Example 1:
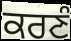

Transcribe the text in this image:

ਕਰਣੰ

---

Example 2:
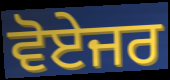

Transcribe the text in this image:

ਵੋਏਜਰ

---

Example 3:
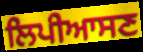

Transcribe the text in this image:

ਲਿਪੀਆਸਣ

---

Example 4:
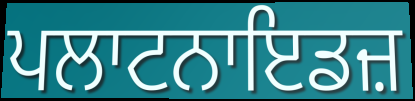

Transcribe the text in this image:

ਪਲਾਟਨਾਇਡਜ਼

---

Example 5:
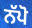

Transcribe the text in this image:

ਨੱਪੋ